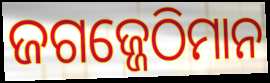
ଜଗଜ୍ଜେଠିମାନ